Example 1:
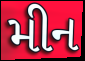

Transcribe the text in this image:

મીન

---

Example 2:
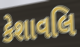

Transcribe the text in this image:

કેશાવલિ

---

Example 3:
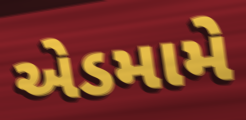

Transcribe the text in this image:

એડમામે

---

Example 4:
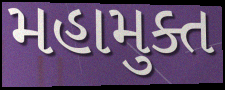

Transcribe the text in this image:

મહામુક્ત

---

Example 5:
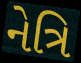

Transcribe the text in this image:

નેત્રિ